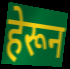
हेरून